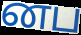
னப